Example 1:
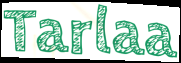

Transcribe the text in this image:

Tarlaa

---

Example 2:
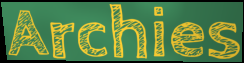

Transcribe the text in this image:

Archies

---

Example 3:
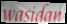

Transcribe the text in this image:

wasidan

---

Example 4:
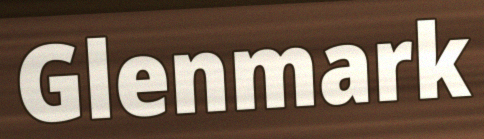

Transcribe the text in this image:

Glenmark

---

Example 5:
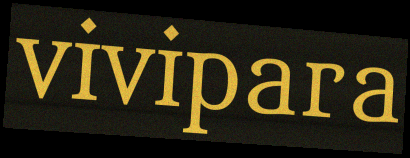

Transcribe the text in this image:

vivipara